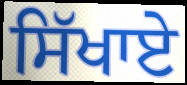
ਸਿੱਖਾਏ